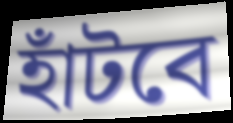
হাঁটবে